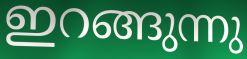
ഇറങ്ങുന്നു